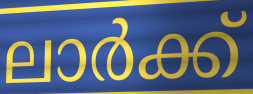
ലാർക്ക്